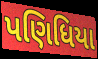
પણિધિયા